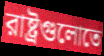
রাষ্ট্রগুলোতে